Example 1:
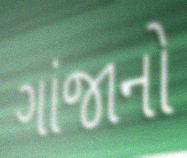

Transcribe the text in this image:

ગાંજાનો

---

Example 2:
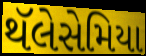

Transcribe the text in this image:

થૅલેસેમિયા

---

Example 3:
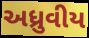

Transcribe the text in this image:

અધ્રુવીય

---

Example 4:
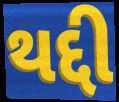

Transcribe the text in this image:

થદ્દી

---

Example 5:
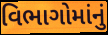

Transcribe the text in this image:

વિભાગોમાંનું